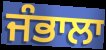
ਜੰਭਾਲਾ